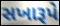
સખારૂપે